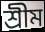
শ্রীম